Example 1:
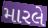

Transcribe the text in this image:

મારલે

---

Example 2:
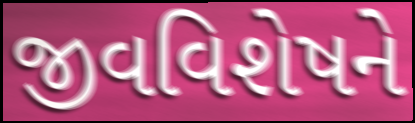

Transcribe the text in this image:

જીવવિશેષને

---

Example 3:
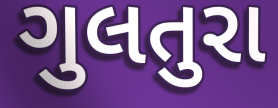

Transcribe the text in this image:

ગુલતુરા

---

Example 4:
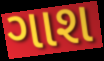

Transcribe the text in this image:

ગાશ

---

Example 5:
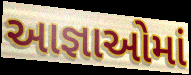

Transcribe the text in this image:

આજ્ઞાઓમાં